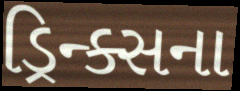
ડ્રિન્ક્સના